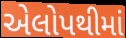
એલોપથીમાં